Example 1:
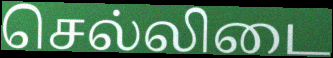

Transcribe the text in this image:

செல்லிடை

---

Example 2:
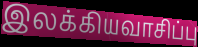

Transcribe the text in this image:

இலக்கியவாசிப்பு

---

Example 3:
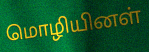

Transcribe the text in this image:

மொழியினள்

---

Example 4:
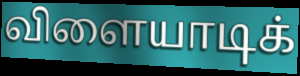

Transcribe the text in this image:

விளையாடிக்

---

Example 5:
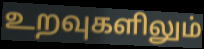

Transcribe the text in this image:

உறவுகளிலும்